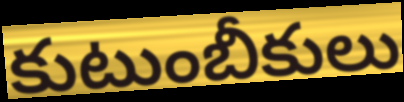
కుటుంబీకులు